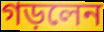
গড়লেন